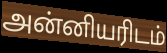
அன்னியரிடம்